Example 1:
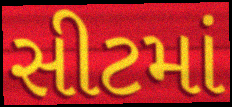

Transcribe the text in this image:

સીટમાં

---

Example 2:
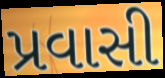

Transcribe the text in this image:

પ્રવાસી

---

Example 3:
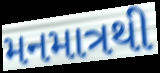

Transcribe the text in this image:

મનમાત્રથી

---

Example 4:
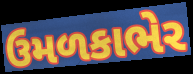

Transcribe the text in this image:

ઉમળકાભેર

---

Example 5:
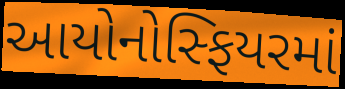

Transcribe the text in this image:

આયોનોસ્ફિયરમાં